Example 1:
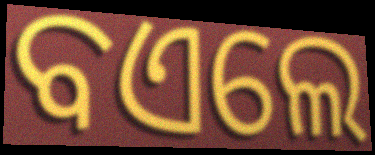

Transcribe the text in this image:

ବଏଲେ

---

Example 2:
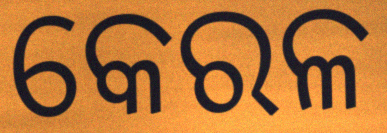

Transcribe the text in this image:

କେରଳ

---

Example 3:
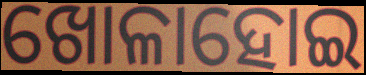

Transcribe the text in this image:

ଖୋଳାହୋଇ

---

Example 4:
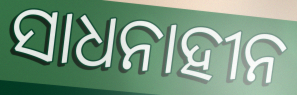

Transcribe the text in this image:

ସାଧନାହୀନ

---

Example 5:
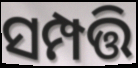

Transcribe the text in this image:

ସମ୍ପତ୍ତି